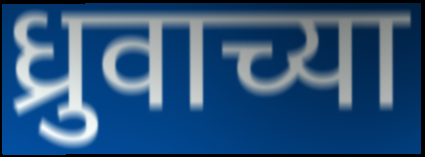
ध्रुवाच्या